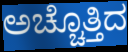
ಅಚ್ಚೊತ್ತಿದ